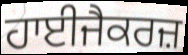
ਹਾਈਜੈਕਰਜ਼